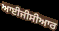
ਆਈਜੀਸੀਆਰ